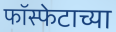
फॉस्फेटाच्या